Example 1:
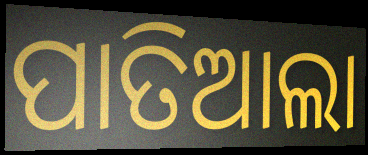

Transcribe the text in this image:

ପାତିଆଲା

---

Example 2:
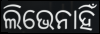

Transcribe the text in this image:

ଲିଭେନାହିଁ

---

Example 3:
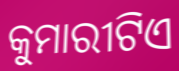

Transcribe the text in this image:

କୁମାରୀଟିଏ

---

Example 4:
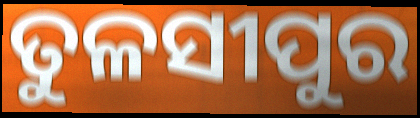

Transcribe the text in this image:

ତୁଳସୀପୁର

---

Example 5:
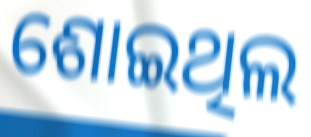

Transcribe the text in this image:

ଶୋଇଥିଲ